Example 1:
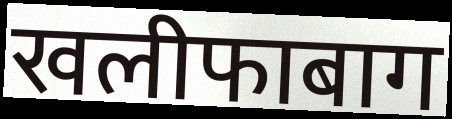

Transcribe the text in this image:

खलीफाबाग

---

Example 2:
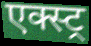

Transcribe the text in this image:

एक्स्ट्र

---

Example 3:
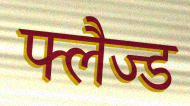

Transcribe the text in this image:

फ्लैज्ड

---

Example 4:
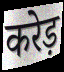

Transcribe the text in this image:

करेड़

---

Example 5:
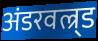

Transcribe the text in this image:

अंडरवल्र्ड